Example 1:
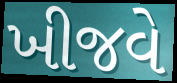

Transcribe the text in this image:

ખીજવે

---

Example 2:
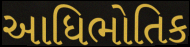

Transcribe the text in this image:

આધિભોતિક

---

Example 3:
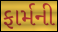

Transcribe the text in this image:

ફાર્મની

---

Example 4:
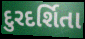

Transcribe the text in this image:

દુરદર્શિતા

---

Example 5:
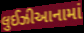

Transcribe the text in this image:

લુઈઝીઆનામાં